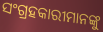
ସଂଗ୍ରହକାରୀମାନଙ୍କୁ